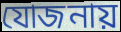
যোজনায়